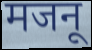
मजनू